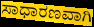
ಸಾಧಾರಣವಾಗಿ